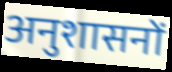
अनुशासनों